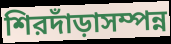
শিরদাঁড়াসম্পন্ন